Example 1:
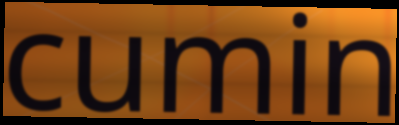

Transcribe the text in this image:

cumin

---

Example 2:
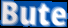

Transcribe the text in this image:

Bute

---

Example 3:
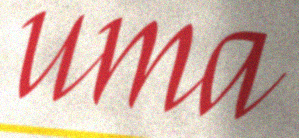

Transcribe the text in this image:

uma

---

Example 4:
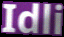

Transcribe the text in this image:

Idli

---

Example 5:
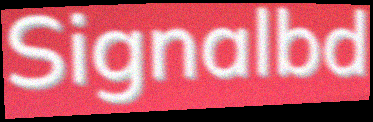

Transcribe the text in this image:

Signalbd